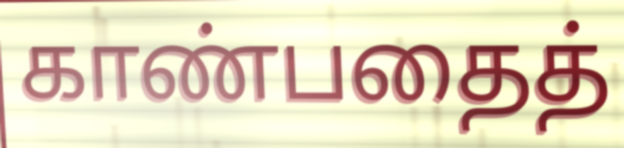
காண்பதைத்